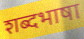
शब्दभाषा